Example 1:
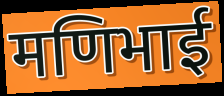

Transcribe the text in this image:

मणिभाई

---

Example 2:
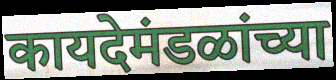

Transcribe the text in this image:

कायदेमंडळांच्या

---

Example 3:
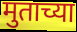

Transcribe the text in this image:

मुताच्या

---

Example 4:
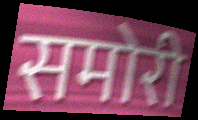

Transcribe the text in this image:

समोरी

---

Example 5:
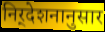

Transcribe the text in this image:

निर्देशनानुसार